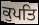
ਕੁਪਤਿ